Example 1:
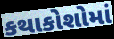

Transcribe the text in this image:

કથાકોશોમાં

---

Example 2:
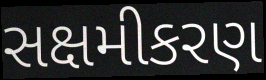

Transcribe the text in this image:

સક્ષમીકરણ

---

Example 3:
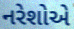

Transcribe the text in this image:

નરેશોએ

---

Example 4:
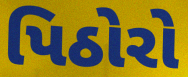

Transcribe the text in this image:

પિઠોરો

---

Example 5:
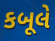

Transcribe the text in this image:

કબૂલે